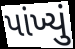
પાંખ્યું